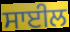
ਸਾਈਲ